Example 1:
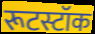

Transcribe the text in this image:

रूटस्टॉक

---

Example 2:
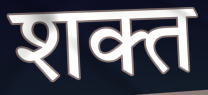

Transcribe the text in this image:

शक्त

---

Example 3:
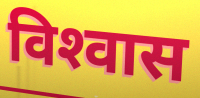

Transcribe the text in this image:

विश्‍वास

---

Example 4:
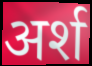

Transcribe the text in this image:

अर्श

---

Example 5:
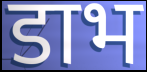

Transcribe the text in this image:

डाभ